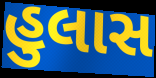
હુલાસ